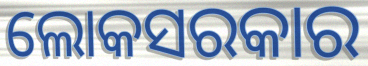
ଲୋକସରକାର